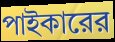
পাইকারের